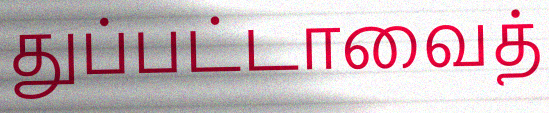
துப்பட்டாவைத்